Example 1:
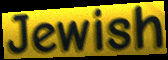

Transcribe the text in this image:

Jewish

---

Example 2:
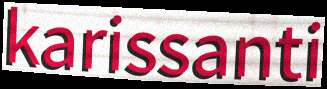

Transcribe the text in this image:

karissanti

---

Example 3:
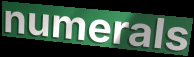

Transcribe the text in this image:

numerals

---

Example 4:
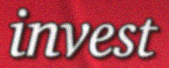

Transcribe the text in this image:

invest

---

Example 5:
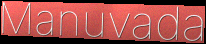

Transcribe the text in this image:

Manuvada